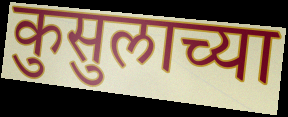
कुसुलाच्या